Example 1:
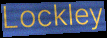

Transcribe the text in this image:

Lockley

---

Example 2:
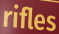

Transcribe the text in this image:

rifles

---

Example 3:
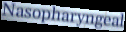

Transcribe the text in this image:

Nasopharyngeal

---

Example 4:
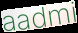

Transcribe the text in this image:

aadmi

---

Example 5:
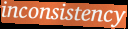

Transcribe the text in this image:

inconsistency